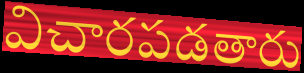
విచారపడతారు